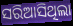
ସରିଆସିଥିଲା